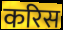
करिस